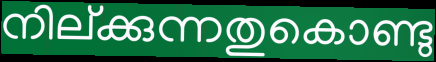
നില്ക്കുന്നതുകൊണ്ടു